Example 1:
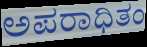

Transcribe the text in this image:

ಅಪರಾಧಿತಂ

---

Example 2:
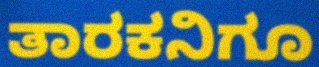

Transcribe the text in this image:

ತಾರಕನಿಗೂ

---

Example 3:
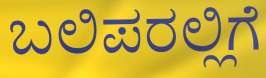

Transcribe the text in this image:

ಬಲಿಪರಲ್ಲಿಗೆ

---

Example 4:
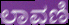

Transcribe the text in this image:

ಲಾವಣಿ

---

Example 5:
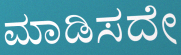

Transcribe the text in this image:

ಮಾಡಿಸದೇ